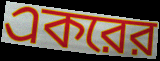
একরের